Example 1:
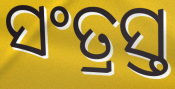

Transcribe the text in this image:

ସଂତ୍ରସ୍ତ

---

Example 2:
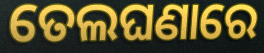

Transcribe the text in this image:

ତେଲଘଣାରେ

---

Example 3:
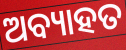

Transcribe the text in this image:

ଅବ୍ୟାହତ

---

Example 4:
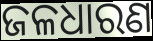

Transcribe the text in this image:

ଜଳଧାରଣ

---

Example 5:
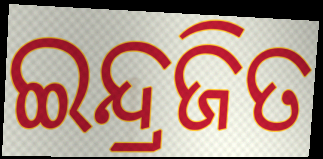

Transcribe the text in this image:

ଇନ୍ଦ୍ରଜିତ